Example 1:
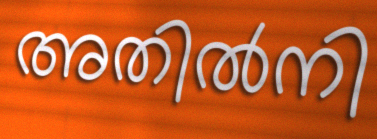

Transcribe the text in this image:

അതിൽനി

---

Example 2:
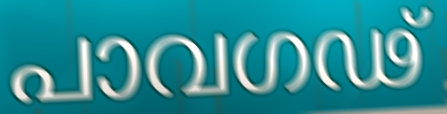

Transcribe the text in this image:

പാവഗഢ്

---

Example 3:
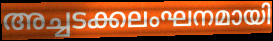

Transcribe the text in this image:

അച്ചടക്കലംഘനമായി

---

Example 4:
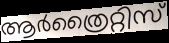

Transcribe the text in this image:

ആർത്രൈറ്റിസ്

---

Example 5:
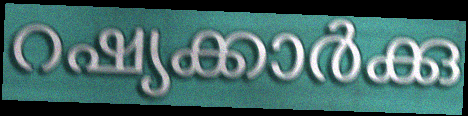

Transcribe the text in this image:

റഷ്യക്കാർക്കു